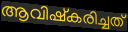
ആവിഷ്കരിച്ചത്